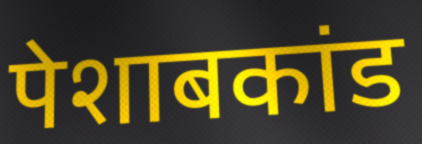
पेशाबकांड